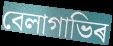
বেলাগাভিৰ